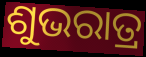
ଶୁଭରାତ୍ର